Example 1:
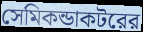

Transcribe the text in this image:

সেমিকন্ডাকটরের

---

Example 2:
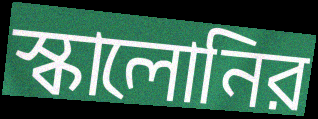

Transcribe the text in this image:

স্কালোনির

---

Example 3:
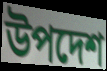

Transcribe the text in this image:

উপদেশ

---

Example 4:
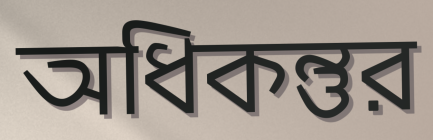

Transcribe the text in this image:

অধিকন্তুর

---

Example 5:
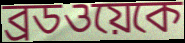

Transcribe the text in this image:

ব্রডওয়েকে